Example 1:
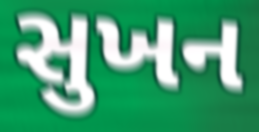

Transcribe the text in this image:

સુખન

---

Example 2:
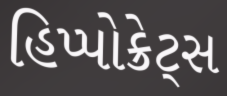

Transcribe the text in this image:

હિપ્પોક્રેટ્સ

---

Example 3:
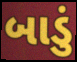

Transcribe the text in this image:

બાડું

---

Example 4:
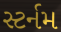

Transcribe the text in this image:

સ્ટર્નમ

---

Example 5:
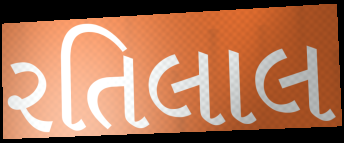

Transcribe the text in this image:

રતિલાલ